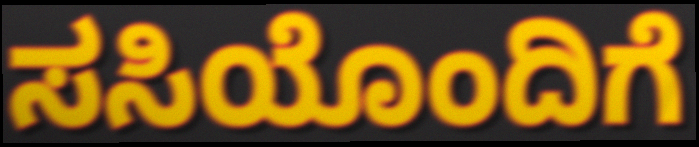
ಸಸಿಯೊಂದಿಗೆ